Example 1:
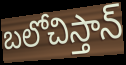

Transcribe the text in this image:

బలోచిస్తాన్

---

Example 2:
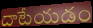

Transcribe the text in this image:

దాటేయడం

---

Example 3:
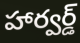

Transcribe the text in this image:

హార్వర్డ్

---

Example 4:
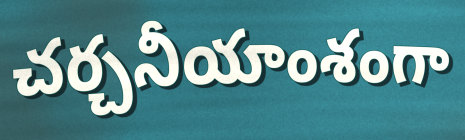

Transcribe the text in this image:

చర్చనీయాంశంగా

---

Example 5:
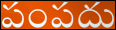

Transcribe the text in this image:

పంపదు